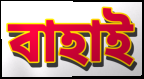
বাহাই